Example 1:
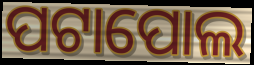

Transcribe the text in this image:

ପଟାପୋଲ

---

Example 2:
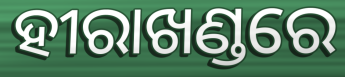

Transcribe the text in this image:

ହୀରାଖଣ୍ଡରେ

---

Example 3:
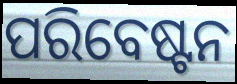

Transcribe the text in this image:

ପରିବେଷ୍ଟନ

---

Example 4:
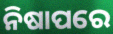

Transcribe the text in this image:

ନିଷାପରେ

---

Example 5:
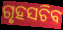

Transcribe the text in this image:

ଗୃହସଚିବ